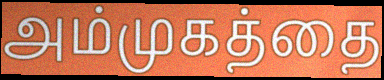
அம்முகத்தை